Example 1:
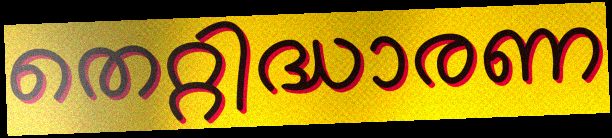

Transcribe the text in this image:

തെറ്റിദ്ധാരണ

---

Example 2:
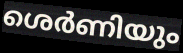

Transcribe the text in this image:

ശെർണിയും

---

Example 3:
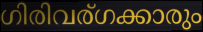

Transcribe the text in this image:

ഗിരിവര്ഗക്കാരും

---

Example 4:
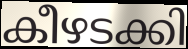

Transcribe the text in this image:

കീഴടക്കി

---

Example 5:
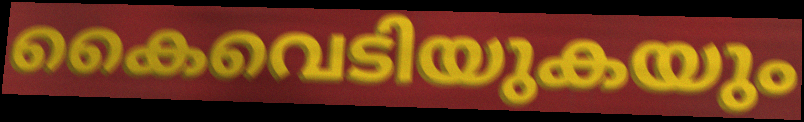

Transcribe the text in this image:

കൈവെടിയുകയും